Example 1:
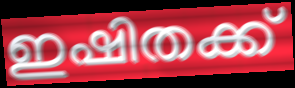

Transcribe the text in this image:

ഇഷിതക്ക്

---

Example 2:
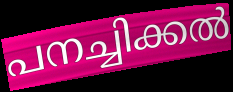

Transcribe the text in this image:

പനച്ചിക്കൽ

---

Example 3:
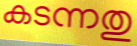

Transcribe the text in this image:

കടന്നതു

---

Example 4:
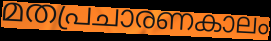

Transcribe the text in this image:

മതപ്രചാരണകാലം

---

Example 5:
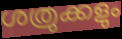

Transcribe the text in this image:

ശത്രുക്കളും